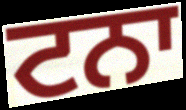
ਟਨਾ